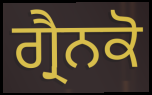
ਗ੍ਰੈਨਕੋ